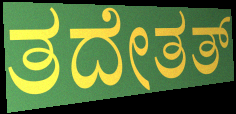
ತದೇತತ್